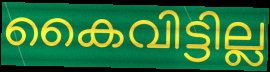
കൈവിട്ടില്ല